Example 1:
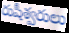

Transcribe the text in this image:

రుషీశ్వరులు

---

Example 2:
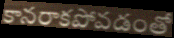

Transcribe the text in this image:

కానరాకపోవడంతో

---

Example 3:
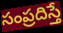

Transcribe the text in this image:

సంప్రదిస్తే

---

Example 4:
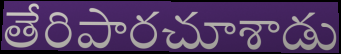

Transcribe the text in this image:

తేరిపారచూశాడు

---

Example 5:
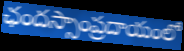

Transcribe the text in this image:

ఛందస్సాంప్రదాయంలో